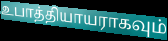
உபாத்தியாயராகவும்